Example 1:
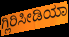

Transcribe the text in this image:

ಗ್ಲಿರಿಸೀಡಿಯಾ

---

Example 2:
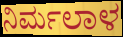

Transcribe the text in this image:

ನಿರ್ಮಲಾಳ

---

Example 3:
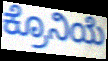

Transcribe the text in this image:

ಕ್ರೊನಿಯೆ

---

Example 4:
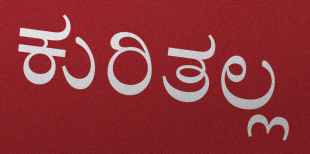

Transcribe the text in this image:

ಕುರಿತಲ್ಲ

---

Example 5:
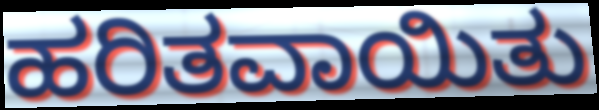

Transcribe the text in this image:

ಹರಿತವಾಯಿತು